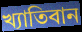
খ্যাতিবান